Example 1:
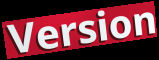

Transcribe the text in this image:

Version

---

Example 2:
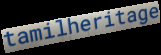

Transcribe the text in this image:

tamilheritage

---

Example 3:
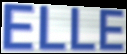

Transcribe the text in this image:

ELLE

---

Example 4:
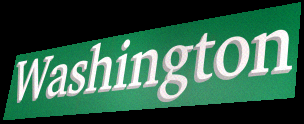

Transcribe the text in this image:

Washington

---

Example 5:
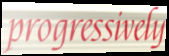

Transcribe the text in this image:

progressively